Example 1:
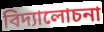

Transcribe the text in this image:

বিদ্যালোচনা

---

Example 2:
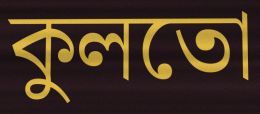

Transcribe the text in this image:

কুলতো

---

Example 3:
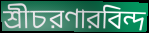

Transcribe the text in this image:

শ্রীচরণারবিন্দ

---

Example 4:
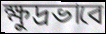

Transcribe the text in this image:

ক্ষুদ্রভাবে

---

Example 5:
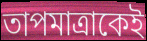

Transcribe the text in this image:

তাপমাত্রাকেই